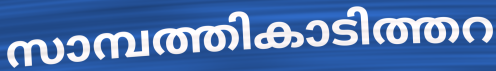
സാമ്പത്തികാടിത്തറ